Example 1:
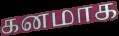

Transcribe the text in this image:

கனமாக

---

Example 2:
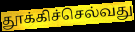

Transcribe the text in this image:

தூக்கிச்செல்வது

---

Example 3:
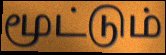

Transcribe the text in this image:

மூட்டும்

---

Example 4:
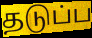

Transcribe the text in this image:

தடுப்ப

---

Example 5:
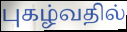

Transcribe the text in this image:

புகழ்வதில்